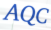
AQC